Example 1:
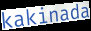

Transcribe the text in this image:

kakinada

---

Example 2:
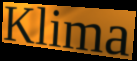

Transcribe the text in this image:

Klima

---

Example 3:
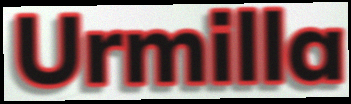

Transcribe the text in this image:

Urmilla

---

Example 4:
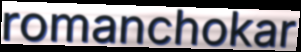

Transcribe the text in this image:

romanchokar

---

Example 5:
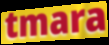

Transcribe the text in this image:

tmara